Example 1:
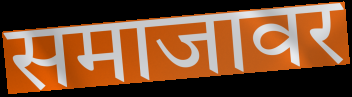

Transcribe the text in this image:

समाजावर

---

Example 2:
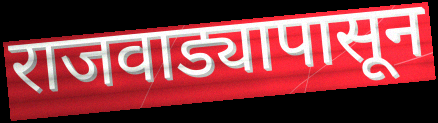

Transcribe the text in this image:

राजवाड्यापासून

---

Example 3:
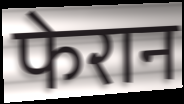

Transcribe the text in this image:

फेरान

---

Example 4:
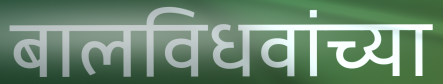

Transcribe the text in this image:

बालविधवांच्या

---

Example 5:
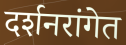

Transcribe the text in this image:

दर्शनरांगेत